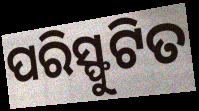
ପରିସ୍ଫୁଟିତ